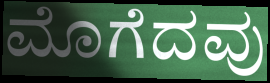
ಮೊಗೆದವು